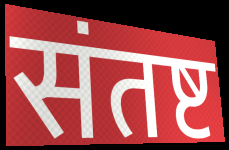
संतष्ट